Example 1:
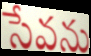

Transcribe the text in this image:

సేవను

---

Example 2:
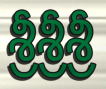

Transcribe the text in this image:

శ్రీశ్రీశ్రీ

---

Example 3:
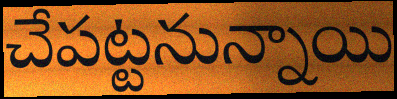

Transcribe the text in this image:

చేపట్టనున్నాయి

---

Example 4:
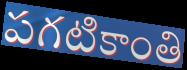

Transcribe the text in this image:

పగటికాంతి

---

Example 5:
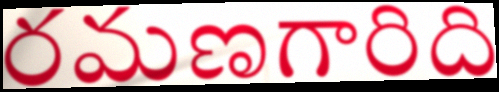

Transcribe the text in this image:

రమణగారిది